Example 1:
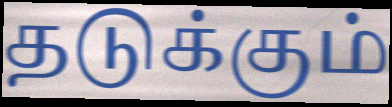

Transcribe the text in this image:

தடுக்கும்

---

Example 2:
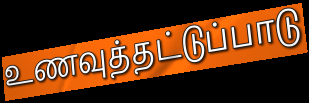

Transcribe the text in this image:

உணவுத்தட்டுப்பாடு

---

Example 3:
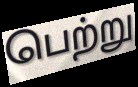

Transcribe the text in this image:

பெற்று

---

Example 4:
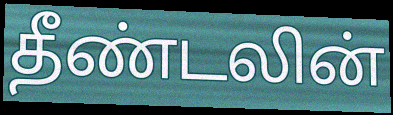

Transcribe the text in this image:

தீண்டலின்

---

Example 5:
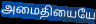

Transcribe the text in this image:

அமைதியையே